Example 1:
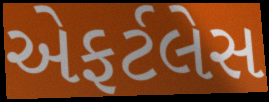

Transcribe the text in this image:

એફર્ટલેસ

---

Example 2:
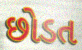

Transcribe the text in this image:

છોડત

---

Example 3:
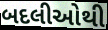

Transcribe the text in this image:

બદલીઓથી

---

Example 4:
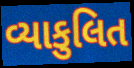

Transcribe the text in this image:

વ્યાકુલિત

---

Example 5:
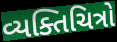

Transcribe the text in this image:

વ્યક્તિચિત્રો